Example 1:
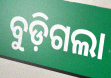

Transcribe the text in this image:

ବୁଡ଼ିଗଲା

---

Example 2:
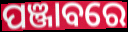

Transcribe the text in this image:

ପଞ୍ଜାବରେ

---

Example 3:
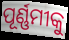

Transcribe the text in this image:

ପୂର୍ଣ୍ଣମୀକୁ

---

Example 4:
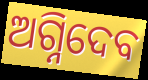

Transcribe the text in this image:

ଅଗ୍ନିଦେବ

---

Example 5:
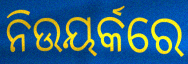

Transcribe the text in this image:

ନିଉୟର୍କରେ